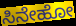
ಸಿನೇಹೋ